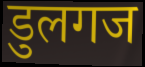
डुलगज